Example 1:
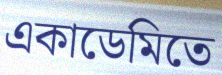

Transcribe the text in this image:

একাডেমিতে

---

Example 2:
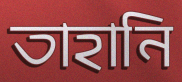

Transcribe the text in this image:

তাহানি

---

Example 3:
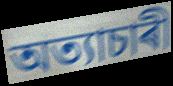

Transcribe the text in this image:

অত্যাচাৰী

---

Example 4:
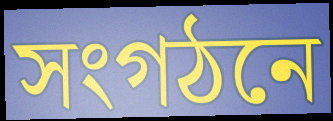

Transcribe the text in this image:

সংগঠনে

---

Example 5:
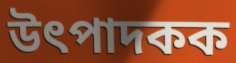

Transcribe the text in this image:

উৎপাদকক